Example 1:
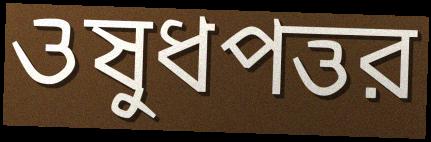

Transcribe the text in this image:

ওষুধপত্তর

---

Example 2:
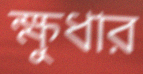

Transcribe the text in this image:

ক্ষুধার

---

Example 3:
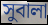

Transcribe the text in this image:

সুবালা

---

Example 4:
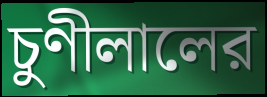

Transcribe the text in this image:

চুণীলালের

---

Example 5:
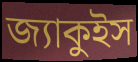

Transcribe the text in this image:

জ্যাকুইস